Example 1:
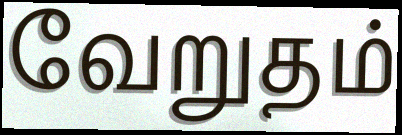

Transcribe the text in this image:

வேறுதம்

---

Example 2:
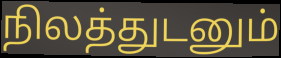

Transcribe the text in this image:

நிலத்துடனும்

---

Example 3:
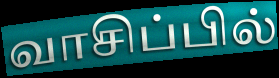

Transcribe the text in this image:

வாசிப்பில்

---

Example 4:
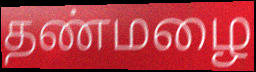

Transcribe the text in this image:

தண்மழை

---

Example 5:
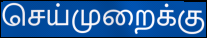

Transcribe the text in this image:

செய்முறைக்கு